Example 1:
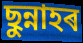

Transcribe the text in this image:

ছুন্নাহৰ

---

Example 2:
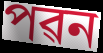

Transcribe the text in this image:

পৱন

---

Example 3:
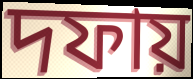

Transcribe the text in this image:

দফায়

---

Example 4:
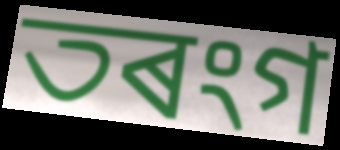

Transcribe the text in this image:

তৰংগ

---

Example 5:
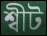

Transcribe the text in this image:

শ্বীট